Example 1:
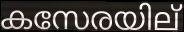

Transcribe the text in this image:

കസേരയില്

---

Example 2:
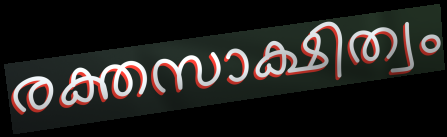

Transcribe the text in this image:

രക്തസാക്ഷിത്വം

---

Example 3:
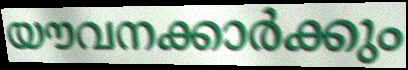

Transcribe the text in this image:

യൗവനക്കാർക്കും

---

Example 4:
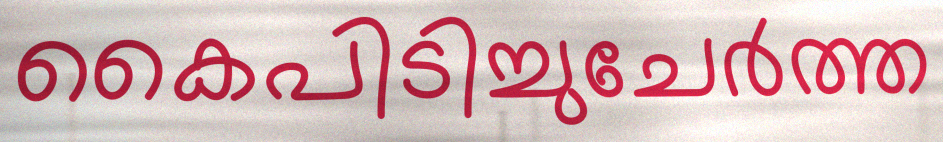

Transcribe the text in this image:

കൈപിടിച്ചുചേർത്ത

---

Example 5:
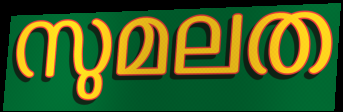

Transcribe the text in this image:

സുമലത